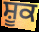
ਸ਼ੂਕ